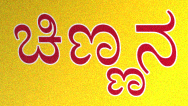
ಚಿಣ್ಣನ